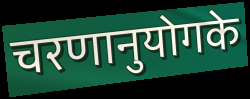
चरणानुयोगके